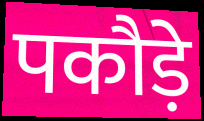
पकौड़े